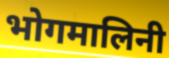
भोगमालिनी